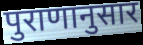
पुराणानुसार